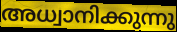
അധ്വാനിക്കുന്നു